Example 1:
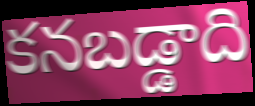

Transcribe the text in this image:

కనబడ్డాది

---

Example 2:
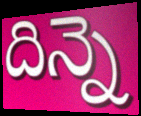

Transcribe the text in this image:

దిన్నె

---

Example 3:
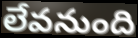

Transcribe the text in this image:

లేవనుంది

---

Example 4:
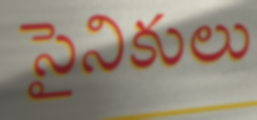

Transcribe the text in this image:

సైనికులు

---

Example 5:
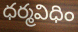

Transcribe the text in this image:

ధర్మవిధిం